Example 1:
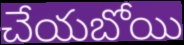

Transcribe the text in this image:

చేయబోయి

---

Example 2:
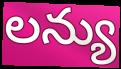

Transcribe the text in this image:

లన్యు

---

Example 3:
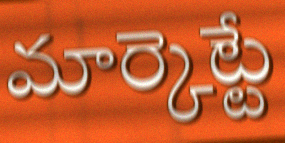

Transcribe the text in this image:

మార్కెట్టే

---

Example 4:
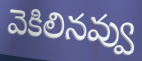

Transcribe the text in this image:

వెకిలినవ్వు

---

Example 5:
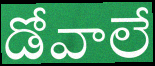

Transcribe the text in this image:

డోవాలే